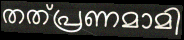
തത്പ്രണമാമി